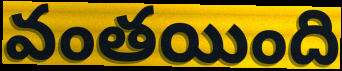
వంతయింది